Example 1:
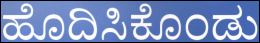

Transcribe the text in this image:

ಹೊದಿಸಿಕೊಂಡು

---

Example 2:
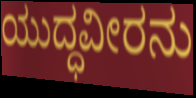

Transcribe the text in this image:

ಯುದ್ಧವೀರನು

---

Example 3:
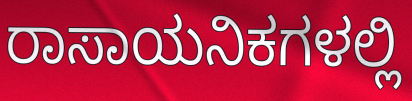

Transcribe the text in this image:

ರಾಸಾಯನಿಕಗಳಲ್ಲಿ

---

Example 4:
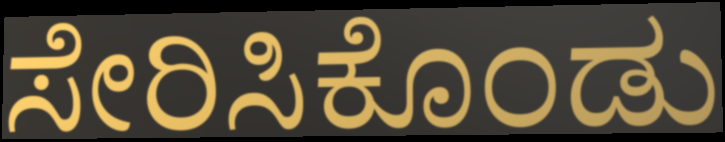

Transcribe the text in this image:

ಸೇರಿಸಿಕೊಂಡು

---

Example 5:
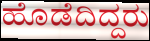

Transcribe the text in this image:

ಹೊಡೆದಿದ್ದರು